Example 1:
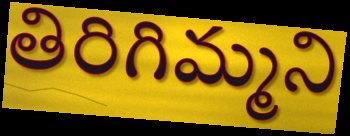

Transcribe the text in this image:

తిరిగిమ్మని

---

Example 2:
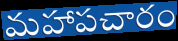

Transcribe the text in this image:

మహాపచారం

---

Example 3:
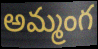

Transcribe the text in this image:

అమ్మంగ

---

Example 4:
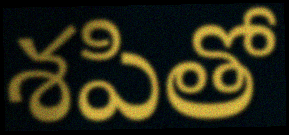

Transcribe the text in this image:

శపితో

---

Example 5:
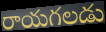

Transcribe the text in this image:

రాయగలడు